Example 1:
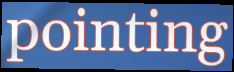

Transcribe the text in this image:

pointing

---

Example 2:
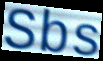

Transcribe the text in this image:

Sbs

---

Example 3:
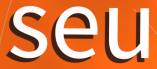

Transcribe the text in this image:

seu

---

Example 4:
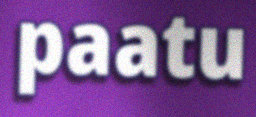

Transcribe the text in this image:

paatu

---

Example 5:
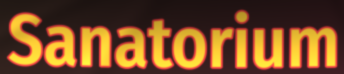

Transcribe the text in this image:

Sanatorium